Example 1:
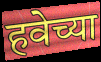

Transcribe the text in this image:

हवेच्या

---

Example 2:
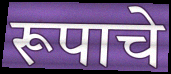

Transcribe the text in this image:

रूपाचे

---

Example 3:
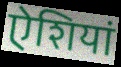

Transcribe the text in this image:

ऐशियां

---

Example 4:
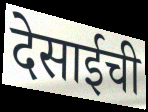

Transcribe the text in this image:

देसाईची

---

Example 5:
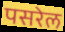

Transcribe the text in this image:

पसरेल